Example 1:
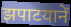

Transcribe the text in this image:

झपाटयानें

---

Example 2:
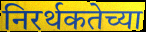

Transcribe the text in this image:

निरर्थकतेच्या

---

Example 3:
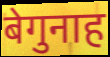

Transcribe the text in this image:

बेगुनाह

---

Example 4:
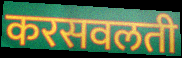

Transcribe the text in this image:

करसवलती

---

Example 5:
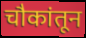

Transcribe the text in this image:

चौकांतून